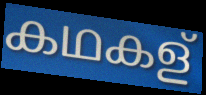
കഥകള്